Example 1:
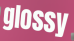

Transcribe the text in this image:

glossy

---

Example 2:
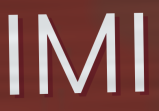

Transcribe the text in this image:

IMI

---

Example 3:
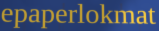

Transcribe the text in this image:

epaperlokmat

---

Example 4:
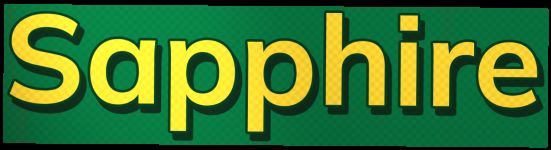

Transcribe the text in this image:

Sapphire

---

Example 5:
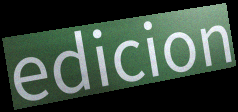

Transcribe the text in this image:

edicion